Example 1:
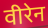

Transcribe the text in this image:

वीरेन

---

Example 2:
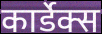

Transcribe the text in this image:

कार्डेक्स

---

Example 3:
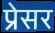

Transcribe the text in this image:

प्रेसर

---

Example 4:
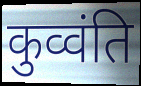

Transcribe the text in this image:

कुव्वंति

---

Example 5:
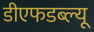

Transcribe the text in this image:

डीएफडब्ल्यू